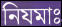
নিযমাঃ